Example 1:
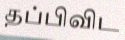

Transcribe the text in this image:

தப்பிவிட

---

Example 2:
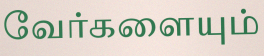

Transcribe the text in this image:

வேர்களையும்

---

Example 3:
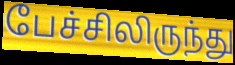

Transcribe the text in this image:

பேச்சிலிருந்து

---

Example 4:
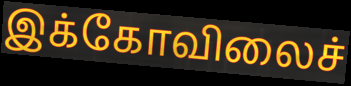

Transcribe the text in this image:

இக்கோவிலைச்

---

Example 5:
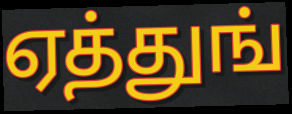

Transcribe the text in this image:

ஏத்துங்